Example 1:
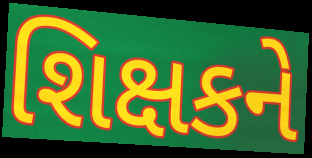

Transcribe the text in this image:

શિક્ષકને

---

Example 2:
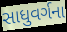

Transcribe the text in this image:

સાધુવર્ગના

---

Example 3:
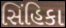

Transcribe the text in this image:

સિંહિકા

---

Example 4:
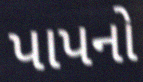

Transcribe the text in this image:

પાપનો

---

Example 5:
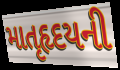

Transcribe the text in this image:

માતૃહૃદયની